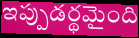
ఇప్పుడర్థమైంది